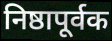
निष्ठापूर्वक